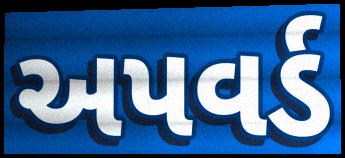
અપવર્ડ